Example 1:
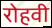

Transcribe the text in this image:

रोहवी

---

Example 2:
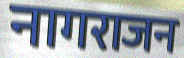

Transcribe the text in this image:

नागराजन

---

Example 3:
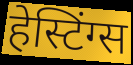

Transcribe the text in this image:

हेस्टिंग्स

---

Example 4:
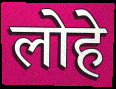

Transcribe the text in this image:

लोहे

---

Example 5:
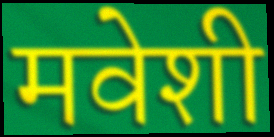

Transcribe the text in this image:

मवेशी